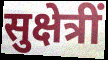
सुक्षेत्रीं